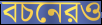
বচনেরও